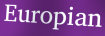
Europian